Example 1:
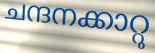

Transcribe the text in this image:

ചന്ദനക്കാറ്റു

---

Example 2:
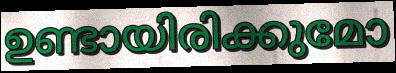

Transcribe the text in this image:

ഉണ്ടായിരിക്കുമോ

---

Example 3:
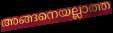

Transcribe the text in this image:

അങ്ങനെയല്ലാത്ത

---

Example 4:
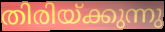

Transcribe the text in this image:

തിരിയ്ക്കുന്നു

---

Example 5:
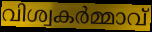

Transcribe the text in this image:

വിശ്വകർമ്മാവ്